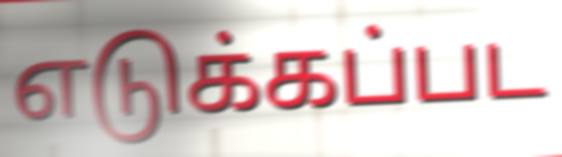
எடுக்கப்பட